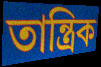
তান্ত্ৰিক